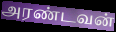
அரண்டவன்